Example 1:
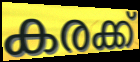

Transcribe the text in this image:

കരക്ക്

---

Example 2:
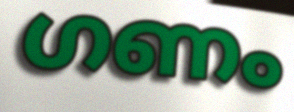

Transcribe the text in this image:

ഗണം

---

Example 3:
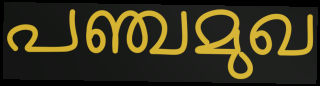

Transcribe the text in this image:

പഞ്ചമുഖ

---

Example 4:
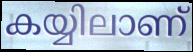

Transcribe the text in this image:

കയ്യിലാണ്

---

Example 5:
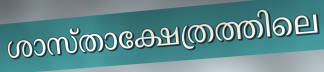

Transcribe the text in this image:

ശാസ്താക്ഷേത്രത്തിലെ